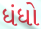
ધંધો